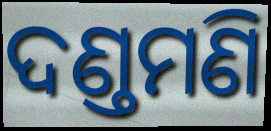
ଦଣ୍ଡମଣି